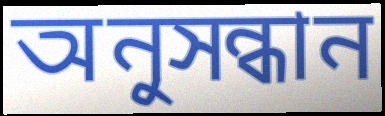
অনুসন্ধান